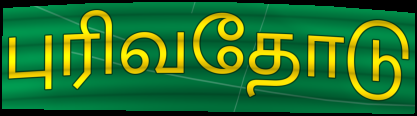
புரிவதோடு